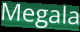
Megala